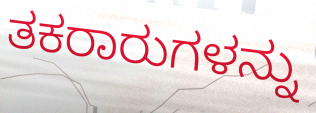
ತಕರಾರುಗಳನ್ನು